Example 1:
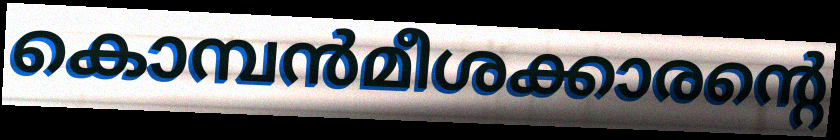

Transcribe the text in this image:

കൊമ്പൻമീശക്കാരന്റെ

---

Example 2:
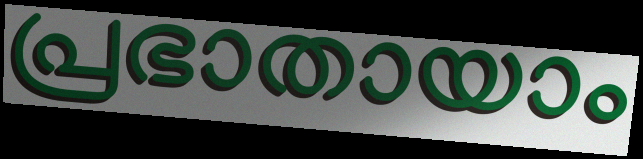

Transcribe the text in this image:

പ്രഭാതായാം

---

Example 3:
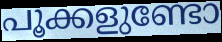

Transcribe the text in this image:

പൂക്കളുണ്ടോ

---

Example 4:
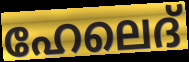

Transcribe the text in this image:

ഹേലെദ്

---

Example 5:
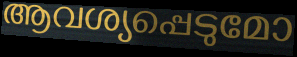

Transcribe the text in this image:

ആവശ്യപ്പെടുമോ